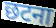
छटना